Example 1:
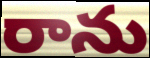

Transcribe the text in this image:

రాను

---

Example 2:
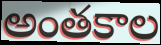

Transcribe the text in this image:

అంతకాల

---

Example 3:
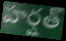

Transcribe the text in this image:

హర్షత్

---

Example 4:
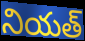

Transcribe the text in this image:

నియత్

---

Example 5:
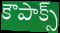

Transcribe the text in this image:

కౌపాక్స్